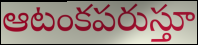
ఆటంకపరుస్తూ